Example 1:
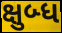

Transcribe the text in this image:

ક્ષુબ્ધ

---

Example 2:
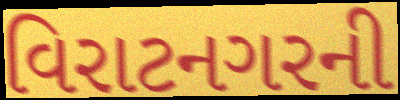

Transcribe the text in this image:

વિરાટનગરની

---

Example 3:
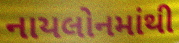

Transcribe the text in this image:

નાયલોનમાંથી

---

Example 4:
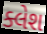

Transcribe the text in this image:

ક્લેશ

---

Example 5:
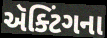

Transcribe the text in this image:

ઍક્ટિંગના